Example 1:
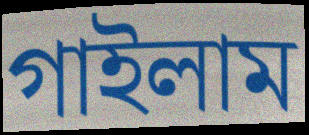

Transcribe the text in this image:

গাইলাম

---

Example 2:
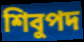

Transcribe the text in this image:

শিবুপদ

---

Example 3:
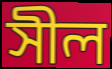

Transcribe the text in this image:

সীল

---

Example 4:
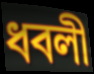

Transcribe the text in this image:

ধবলী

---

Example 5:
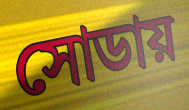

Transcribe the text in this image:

সোডায়